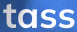
tass